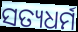
ସତ୍ୟଧର୍ମ